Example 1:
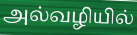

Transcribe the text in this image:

அல்வழியில்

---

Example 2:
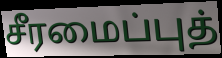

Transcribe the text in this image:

சீரமைப்புத்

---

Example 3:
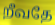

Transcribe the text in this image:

றீவதே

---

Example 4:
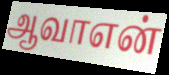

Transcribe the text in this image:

ஆவாஎன்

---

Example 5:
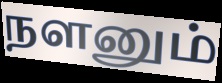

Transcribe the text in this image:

நளனும்